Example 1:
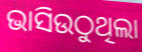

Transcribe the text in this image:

ଭାସିଉଠୁଥିଲା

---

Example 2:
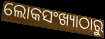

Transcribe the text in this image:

ଲୋକସଂଖ୍ୟାଠାରୁ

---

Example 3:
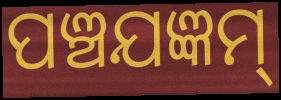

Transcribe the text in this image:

ପଞ୍ଚଯଜ୍ଞମ୍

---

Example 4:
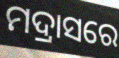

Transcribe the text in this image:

ମଦ୍ରାସରେ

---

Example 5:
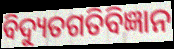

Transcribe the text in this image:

ବିଦ୍ୟୁତଗତିବିଜ୍ଞାନ